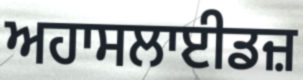
ਅਹਾਸਲਾਈਡਜ਼